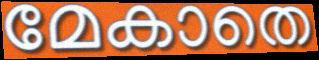
മേകാതെ